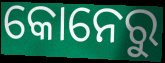
କୋନେରୁ